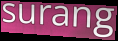
surang